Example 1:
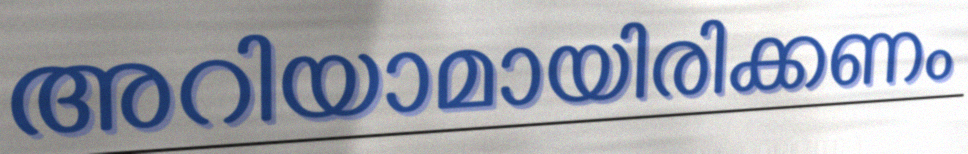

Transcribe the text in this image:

അറിയാമായിരിക്കണം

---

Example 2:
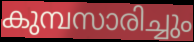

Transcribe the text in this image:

കുമ്പസാരിച്ചും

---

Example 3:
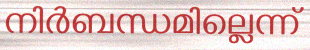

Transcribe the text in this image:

നിർബന്ധമില്ലെന്ന്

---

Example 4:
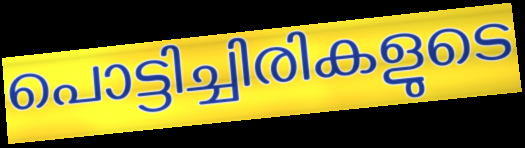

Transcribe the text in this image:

പൊട്ടിച്ചിരികളുടെ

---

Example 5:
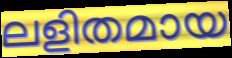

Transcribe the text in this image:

ലളിതമായ